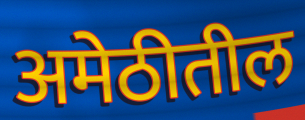
अमेठीतील